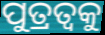
ପୁତ୍ରତ୍ଵକୁ